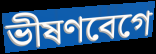
ভীষণবেগে